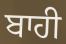
ਬਾਹੀ